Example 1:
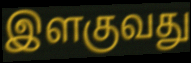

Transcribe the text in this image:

இளகுவது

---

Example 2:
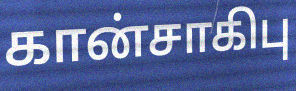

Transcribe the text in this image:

கான்சாகிபு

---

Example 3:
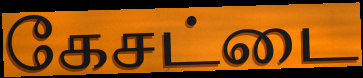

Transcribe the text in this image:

கேசட்டை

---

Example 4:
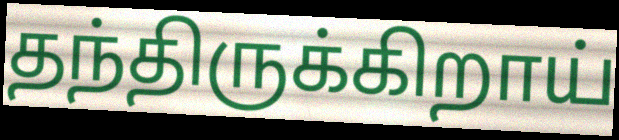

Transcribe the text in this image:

தந்திருக்கிறாய்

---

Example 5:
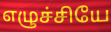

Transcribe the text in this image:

எழுச்சியே